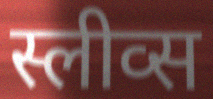
स्लीव्स